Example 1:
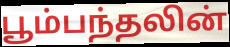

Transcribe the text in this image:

பூம்பந்தலின்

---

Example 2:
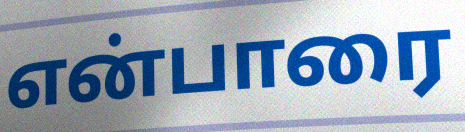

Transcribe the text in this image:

என்பாரை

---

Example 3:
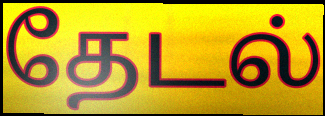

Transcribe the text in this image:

தேடல்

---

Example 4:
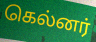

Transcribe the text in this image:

கெல்னர்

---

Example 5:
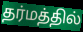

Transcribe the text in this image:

தர்மத்தில்